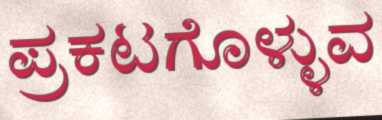
ಪ್ರಕಟಗೊಳ್ಳುವ